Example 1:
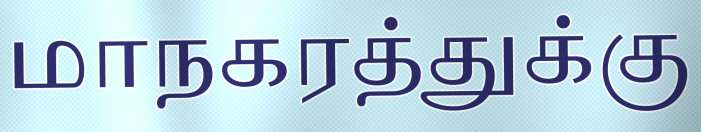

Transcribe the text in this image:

மாநகரத்துக்கு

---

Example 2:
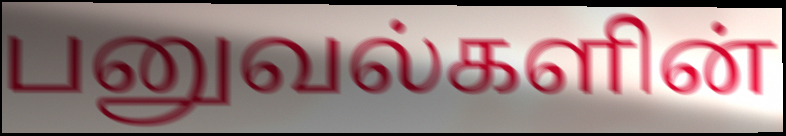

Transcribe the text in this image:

பனுவல்களின்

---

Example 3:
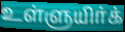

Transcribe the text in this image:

உள்ளுயிர்க்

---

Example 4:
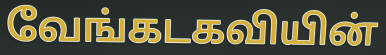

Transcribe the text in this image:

வேங்கடகவியின்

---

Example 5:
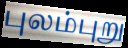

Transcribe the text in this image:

புலம்புறு